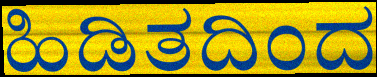
ಹಿಡಿತದಿಂದ